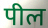
पील